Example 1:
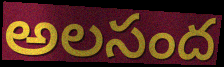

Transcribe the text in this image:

అలసంద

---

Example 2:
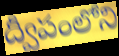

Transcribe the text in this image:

ద్వీపంలోని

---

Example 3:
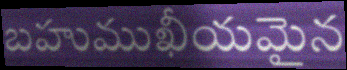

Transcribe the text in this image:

బహుముఖీయమైన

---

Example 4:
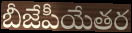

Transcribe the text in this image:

బీజేపీయేతర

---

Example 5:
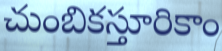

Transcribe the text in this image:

చుంబికస్తూరికాం